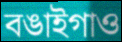
বঙাইগাও